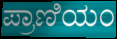
ಪ್ರಾಣಿಯಂ